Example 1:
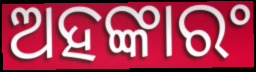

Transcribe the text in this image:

ଅହଙ୍କାରଂ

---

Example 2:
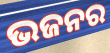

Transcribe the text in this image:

ଭଜନର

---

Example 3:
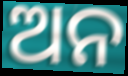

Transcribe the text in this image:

ଅନ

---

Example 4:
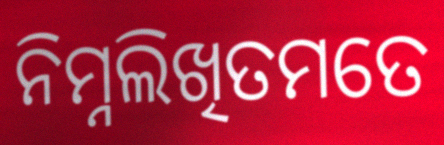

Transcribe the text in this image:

ନିମ୍ନଲିଖିତମତେ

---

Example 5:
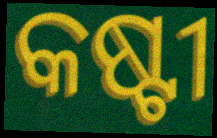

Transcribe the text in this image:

କଷ୍ଟୀ